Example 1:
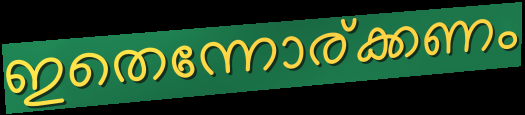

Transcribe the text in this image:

ഇതെന്നോര്ക്കണം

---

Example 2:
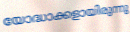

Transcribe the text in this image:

യോദ്ധാക്കളായിരുന്നു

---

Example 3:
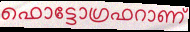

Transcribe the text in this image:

ഫൊട്ടോഗ്രഫറാണ്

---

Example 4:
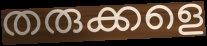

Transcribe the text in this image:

തരുക്കളെ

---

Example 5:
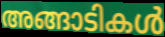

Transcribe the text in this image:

അങ്ങാടികൾ